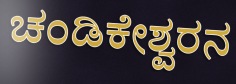
ಚಂಡಿಕೇಶ್ವರನ